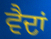
ਵੈਦਾਂ